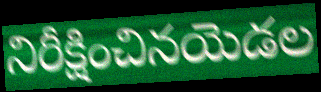
నిరీక్షించినయెడల